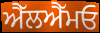
ਐੱਲਐੱਮਓ